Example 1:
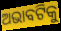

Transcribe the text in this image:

ଅଭାବଟିକୁ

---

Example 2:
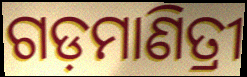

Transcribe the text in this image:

ଗଡ଼ମାଣିତ୍ରୀ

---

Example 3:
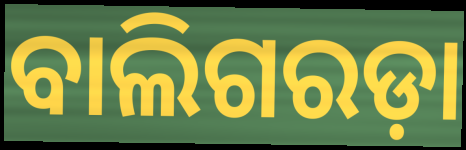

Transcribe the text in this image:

ବାଲିଗରଡ଼ା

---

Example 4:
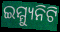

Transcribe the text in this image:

ଇମ୍ମ୍ୟୁନିଟି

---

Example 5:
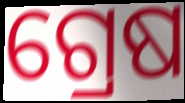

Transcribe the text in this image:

ଗ୍ରେଷ